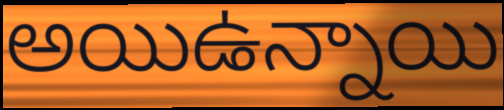
అయిఉన్నాయి